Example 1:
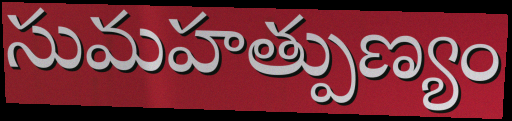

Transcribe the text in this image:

సుమహత్పుణ్యం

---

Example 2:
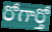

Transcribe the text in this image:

రోగార్తో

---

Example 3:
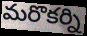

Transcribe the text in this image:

మరొకర్ని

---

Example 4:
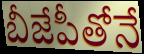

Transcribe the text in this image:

బీజేపీతోనే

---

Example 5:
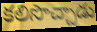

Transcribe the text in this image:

కలిసొచ్చాడు